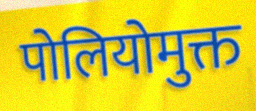
पोलियोमुक्त